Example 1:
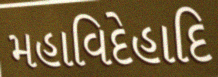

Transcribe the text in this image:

મહાવિદેહાદિ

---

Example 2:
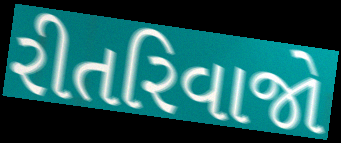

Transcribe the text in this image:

રીતરિવાજો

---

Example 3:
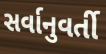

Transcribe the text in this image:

સર્વાનુવર્તી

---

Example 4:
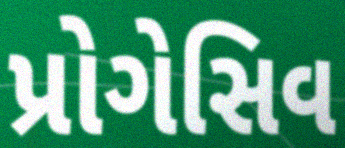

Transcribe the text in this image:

પ્રોગેસિવ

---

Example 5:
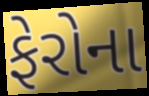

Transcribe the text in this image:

ફેરોના